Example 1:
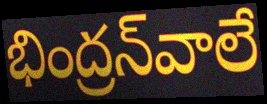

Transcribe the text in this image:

భింద్రన్‌వాలే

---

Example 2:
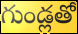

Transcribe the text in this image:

గుండ్లతో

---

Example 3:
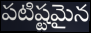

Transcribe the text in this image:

పటిష్టమైన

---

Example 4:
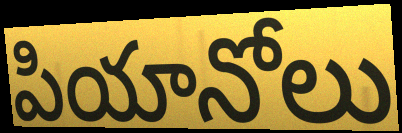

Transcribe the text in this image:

పియానోలు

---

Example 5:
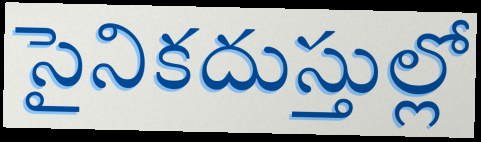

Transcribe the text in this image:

సైనికదుస్తుల్లో